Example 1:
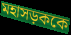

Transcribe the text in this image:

মহাসড়ককে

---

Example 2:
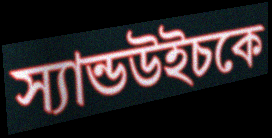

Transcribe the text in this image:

স্যান্ডউইচকে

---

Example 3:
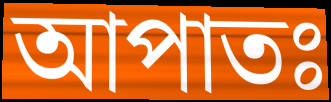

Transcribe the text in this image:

আপাতঃ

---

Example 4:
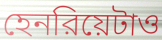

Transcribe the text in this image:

হেনরিয়েটাও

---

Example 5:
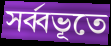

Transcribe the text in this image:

সর্ব্বভূতে